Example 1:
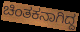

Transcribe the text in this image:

ಚಿಂತಕನಾಗಿದ್ದ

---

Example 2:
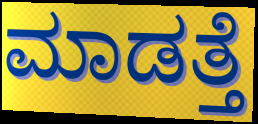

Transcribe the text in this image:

ಮಾಡತ್ತೆ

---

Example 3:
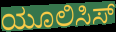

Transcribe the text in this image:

ಯೂಲಿಸಿಸ್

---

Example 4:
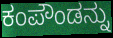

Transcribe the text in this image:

ಕಂಪೌಂಡನ್ನು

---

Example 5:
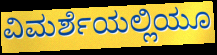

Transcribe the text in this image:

ವಿಮರ್ಶೆಯಲ್ಲಿಯೂ